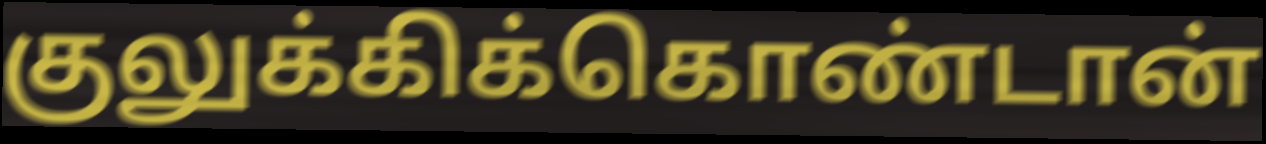
குலுக்கிக்கொண்டான்